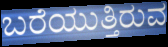
ಬರೆಯುತ್ತಿರುವ